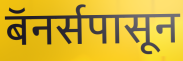
बॅनर्सपासून